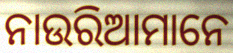
ନାଉରିଆମାନେ